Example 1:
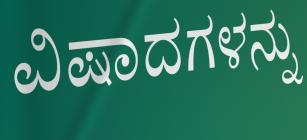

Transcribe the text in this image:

ವಿಷಾದಗಳನ್ನು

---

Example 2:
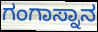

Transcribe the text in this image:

ಗಂಗಾಸ್ನಾನ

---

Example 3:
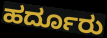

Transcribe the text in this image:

ಹರ್ದೂರು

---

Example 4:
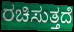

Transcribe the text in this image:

ರಚಿಸುತ್ತದೆ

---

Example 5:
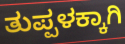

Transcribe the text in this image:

ತುಪ್ಪಳಕ್ಕಾಗಿ